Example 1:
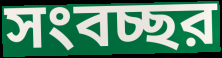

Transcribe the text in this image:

সংবচ্ছর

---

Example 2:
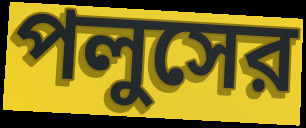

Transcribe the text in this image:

পলুসের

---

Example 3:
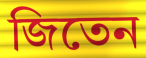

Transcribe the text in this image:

জিতেন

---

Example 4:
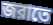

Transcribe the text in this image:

জরাতে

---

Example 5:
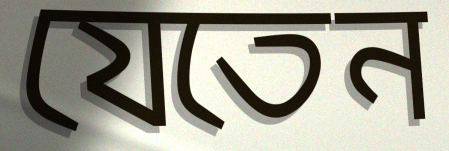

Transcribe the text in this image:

যেতেন